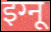
इग्‍नू